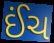
ઈંચ